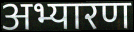
अभ्यारण